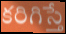
కరిగిస్తే